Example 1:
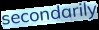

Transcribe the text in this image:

secondarily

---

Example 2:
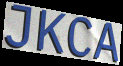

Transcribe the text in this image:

JKCA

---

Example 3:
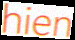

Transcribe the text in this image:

hien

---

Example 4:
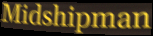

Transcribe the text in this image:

Midshipman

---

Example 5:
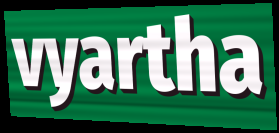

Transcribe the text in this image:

vyartha